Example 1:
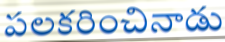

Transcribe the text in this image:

పలకరించినాడు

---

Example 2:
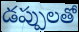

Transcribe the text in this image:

డప్పులతో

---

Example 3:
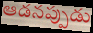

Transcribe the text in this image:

ఆడనప్పుడు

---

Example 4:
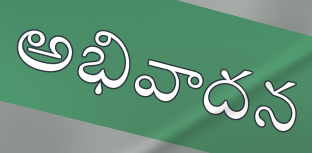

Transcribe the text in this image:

అభివాదన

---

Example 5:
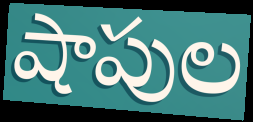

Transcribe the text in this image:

షాపుల